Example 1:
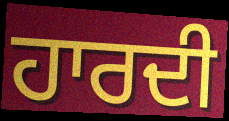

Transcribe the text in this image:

ਹਾਰਦੀ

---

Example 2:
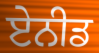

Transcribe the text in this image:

ਏਨੀਡ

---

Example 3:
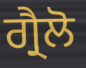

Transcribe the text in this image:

ਗ੍ਰੈਲੋ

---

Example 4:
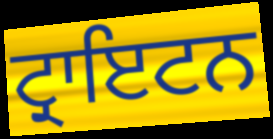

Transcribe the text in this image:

ਟ੍ਰਾਇਟਨ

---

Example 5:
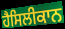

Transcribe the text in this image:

ਹੈਸਿਲੀਕਾਨ